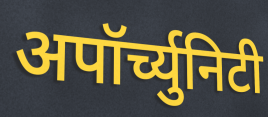
अपॉर्च्युनिटी